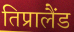
तिप्रालैंड